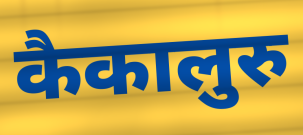
कैकालुरु